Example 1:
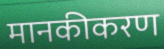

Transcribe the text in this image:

मानकीकरण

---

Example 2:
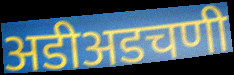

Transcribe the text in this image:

अडीअडचणी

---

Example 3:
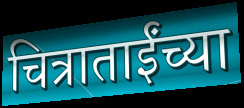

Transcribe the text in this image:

चित्राताईंच्या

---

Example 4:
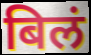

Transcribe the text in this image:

बिलं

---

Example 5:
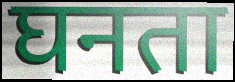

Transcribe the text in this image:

घनता